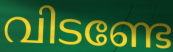
വിടണ്ടേ